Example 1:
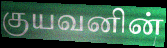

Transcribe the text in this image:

குயவனின்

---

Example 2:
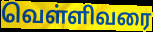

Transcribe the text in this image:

வெள்ளிவரை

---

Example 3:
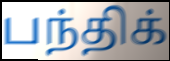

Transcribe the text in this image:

பந்திக்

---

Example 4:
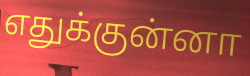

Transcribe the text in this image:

எதுக்குன்னா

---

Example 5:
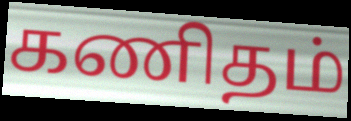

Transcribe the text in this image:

கணிதம்